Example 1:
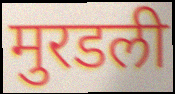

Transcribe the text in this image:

मुरडली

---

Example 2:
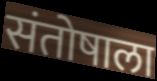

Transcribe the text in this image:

संतोषाला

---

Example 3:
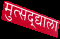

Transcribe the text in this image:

मुत्सद्द्याला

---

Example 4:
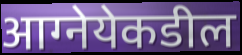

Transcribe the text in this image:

आग्नेयेकडील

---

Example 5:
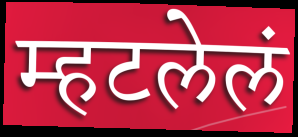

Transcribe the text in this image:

म्हटलेलं